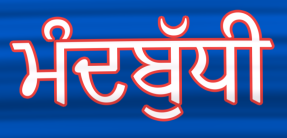
ਮੰਦਬੁੱਧੀ